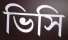
ভিসি